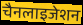
चैनलाइजेशन